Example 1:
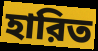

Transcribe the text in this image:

হারিত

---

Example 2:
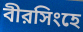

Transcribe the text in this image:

বীরসিংহে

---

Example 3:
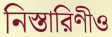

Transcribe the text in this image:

নিস্তারিণীও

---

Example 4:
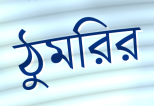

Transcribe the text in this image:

ঠুমরির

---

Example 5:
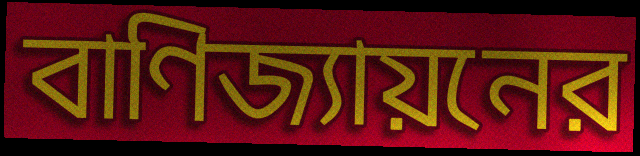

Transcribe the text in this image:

বাণিজ্যায়নের